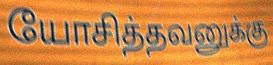
யோசித்தவனுக்கு